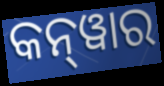
କନ୍‍ୱାର